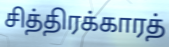
சித்திரக்காரத்